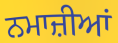
ਨਮਾਜ਼ੀਆਂ